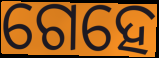
ଗେହେ